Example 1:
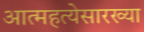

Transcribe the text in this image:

आत्महत्येसारख्या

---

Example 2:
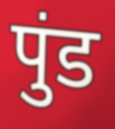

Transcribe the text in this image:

पुंड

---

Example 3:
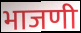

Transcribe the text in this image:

भाजणी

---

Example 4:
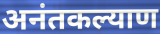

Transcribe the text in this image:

अनंतकल्याण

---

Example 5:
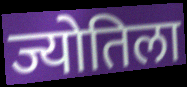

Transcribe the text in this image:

ज्योतिला